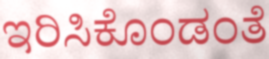
ಇರಿಸಿಕೊಂಡಂತೆ